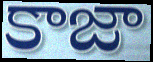
కాజా